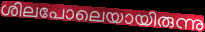
ശിലപോലെയായിരുന്നു